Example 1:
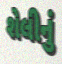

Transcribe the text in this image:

શેલીનું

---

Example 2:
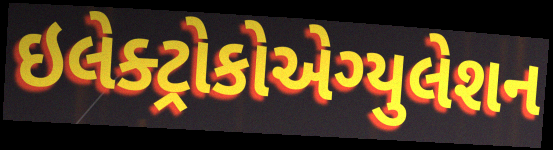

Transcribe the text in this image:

ઇલેક્ટ્રોકોએગ્યુલેશન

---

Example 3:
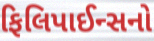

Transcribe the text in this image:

ફિલિપાઈન્સનો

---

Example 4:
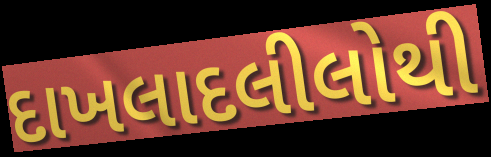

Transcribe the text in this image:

દાખલાદલીલોથી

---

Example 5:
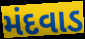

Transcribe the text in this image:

મંદવાડ